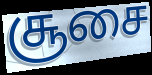
சூசை